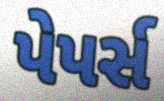
પેપર્સ